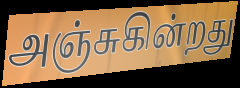
அஞ்சுகின்றது